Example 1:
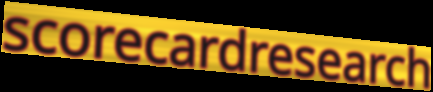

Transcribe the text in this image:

scorecardresearch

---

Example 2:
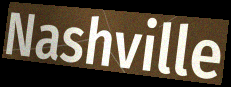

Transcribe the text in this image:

Nashville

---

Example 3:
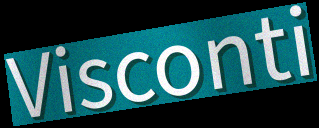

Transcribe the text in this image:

Visconti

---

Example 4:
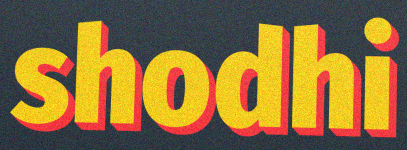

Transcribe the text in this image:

shodhi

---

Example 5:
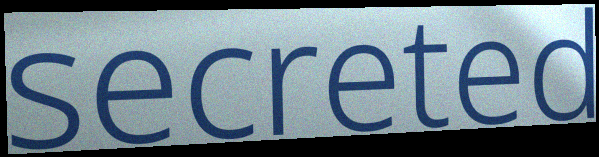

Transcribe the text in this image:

secreted